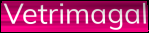
Vetrimagal